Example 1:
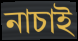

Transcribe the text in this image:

নাচাই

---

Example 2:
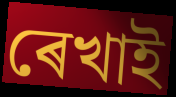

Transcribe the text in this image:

ৰেখাই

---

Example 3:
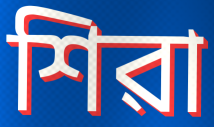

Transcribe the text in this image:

শিৱা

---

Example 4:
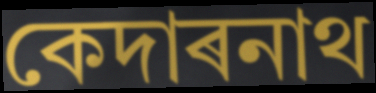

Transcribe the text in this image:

কেদাৰনাথ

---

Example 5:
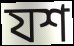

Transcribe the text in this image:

যশ